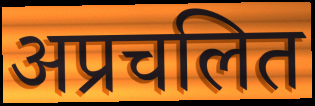
अप्रचलित